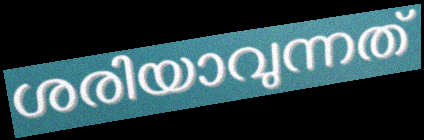
ശരിയാവുന്നത്